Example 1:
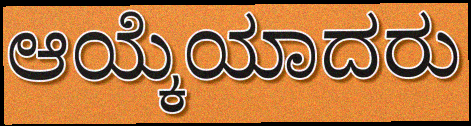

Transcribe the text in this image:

ಆಯ್ಕೆಯಾದರು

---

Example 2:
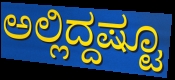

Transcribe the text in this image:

ಅಲ್ಲಿದ್ದಷ್ಟೂ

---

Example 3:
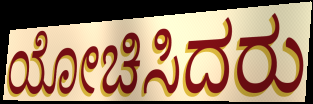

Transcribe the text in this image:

ಯೋಚಿಸಿದರು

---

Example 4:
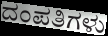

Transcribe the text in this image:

ದಂಪತಿಗಳು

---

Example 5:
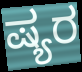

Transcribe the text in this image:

ಷ್ಯರ